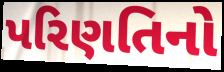
પરિણતિનો